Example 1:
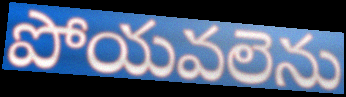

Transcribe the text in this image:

పోయవలెను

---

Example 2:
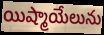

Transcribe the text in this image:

యిష్మాయేలును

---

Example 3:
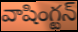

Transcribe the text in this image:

వాషింగ్టన్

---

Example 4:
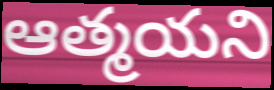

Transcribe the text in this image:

ఆత్మయని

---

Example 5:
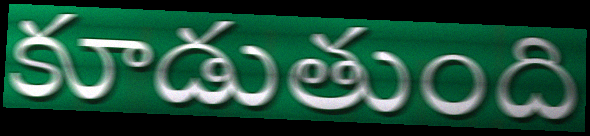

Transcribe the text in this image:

కూడుతుంది